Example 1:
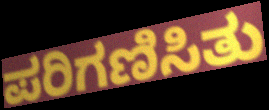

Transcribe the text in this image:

ಪರಿಗಣಿಸಿತು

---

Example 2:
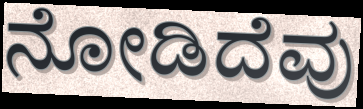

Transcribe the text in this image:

ನೋಡಿದೆವು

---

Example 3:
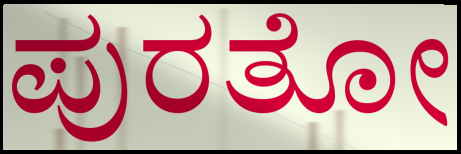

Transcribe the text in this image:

ಪುರತೋ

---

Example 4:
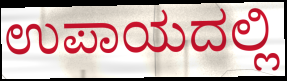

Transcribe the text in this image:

ಉಪಾಯದಲ್ಲಿ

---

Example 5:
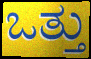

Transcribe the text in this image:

ಒತ್ತು